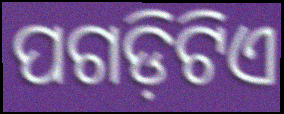
ପଗଡ଼ିଟିଏ